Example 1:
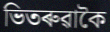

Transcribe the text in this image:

ভিতৰুৱাকৈ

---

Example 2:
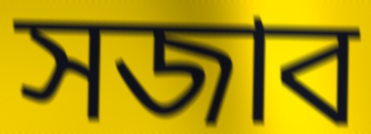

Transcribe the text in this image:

সজাব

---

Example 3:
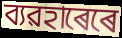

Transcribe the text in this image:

ব্যৱহাৰেৰে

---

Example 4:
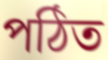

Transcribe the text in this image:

পঠিত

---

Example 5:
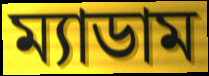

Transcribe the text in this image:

ম্যাডাম